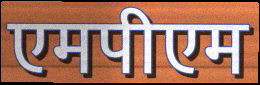
एमपीएम